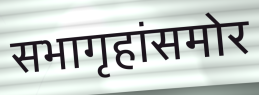
सभागृहांसमोर